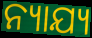
ନ୍ୟାଯ୍ୟ